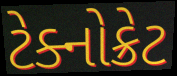
ટેક્નોક્રેટ